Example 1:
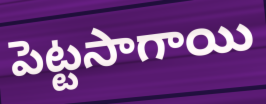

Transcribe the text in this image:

పెట్టసాగాయి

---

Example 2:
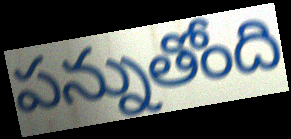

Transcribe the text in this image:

పన్నుతోంది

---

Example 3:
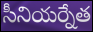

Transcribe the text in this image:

సీనియర్నేత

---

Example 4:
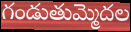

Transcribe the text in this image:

గండుతుమ్మెదల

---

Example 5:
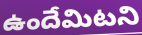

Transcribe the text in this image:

ఉందేమిటని